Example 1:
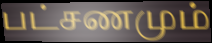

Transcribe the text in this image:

பட்சணமும்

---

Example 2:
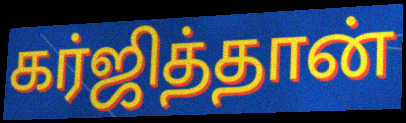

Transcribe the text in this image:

கர்ஜித்தான்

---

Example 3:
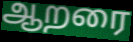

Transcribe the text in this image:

ஆறரை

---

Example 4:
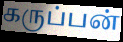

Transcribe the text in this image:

கருப்பன்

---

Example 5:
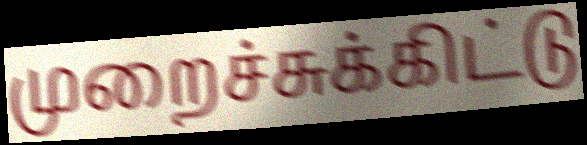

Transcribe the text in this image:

முறைச்சுக்கிட்டு